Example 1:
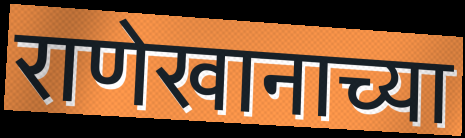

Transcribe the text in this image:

राणेखानाच्या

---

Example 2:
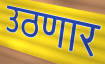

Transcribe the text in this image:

उठणार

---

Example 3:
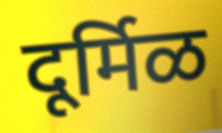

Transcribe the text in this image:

दूर्मिळ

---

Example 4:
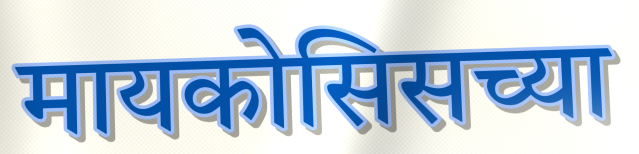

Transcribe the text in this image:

मायकोसिसच्या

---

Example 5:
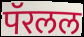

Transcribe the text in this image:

पॅरलल